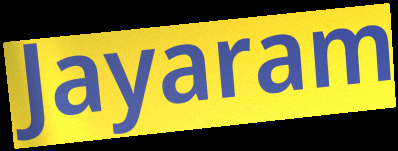
Jayaram